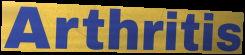
Arthritis